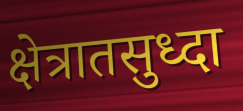
क्षेत्रातसुध्दा